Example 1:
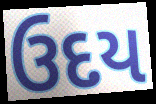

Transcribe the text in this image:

ઉદય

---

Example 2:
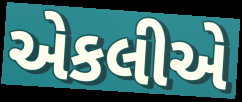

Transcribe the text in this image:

એકલીએ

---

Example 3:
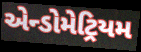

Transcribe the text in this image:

એન્ડોમેટ્રિયમ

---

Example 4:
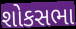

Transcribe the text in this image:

શોકસભા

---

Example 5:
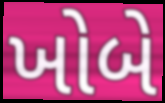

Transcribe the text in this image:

ખોબે